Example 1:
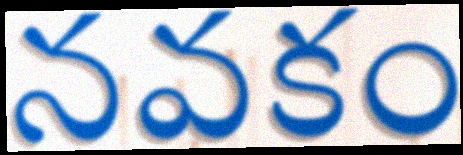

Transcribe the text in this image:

నవకం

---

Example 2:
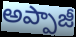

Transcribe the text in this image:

అప్పాజీ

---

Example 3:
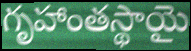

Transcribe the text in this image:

గృహాంతస్థాయై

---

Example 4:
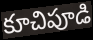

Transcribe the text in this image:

కూచిపూడి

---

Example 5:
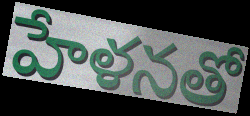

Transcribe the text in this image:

హేళనతో